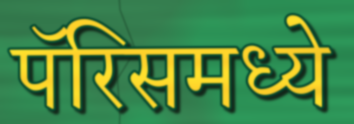
पॅरिसमध्ये